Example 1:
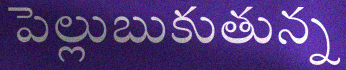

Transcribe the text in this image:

పెల్లుబుకుతున్న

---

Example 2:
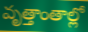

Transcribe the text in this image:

వృత్తాంతాల్లో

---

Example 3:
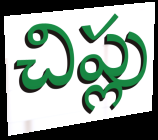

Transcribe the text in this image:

చిప్లు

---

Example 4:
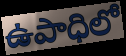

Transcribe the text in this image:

ఉపాధిలో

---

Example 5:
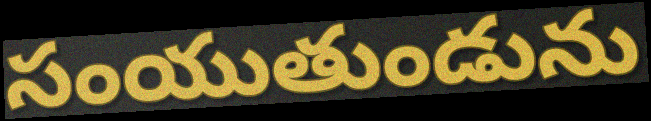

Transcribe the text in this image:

సంయుతుండును